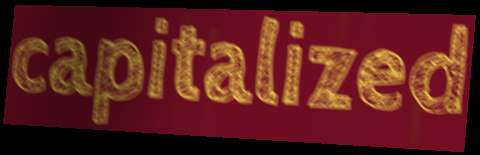
capitalized